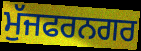
ਮੁੱਜਫਰਨਗਰ